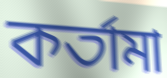
কর্তামা